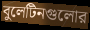
বুলেটিনগুলোর